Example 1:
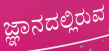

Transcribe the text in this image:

ಜ್ಞಾನದಲ್ಲಿರುವ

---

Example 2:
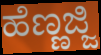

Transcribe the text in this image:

ಹೆಣ್ಣಜ್ಜಿ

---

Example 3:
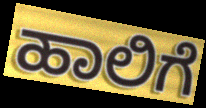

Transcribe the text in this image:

ಹಾಲಿಗೆ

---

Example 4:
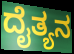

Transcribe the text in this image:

ದೈತ್ಯನ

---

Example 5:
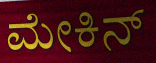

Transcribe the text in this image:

ಮೇಕಿನ್